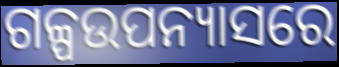
ଗଳ୍ପଉପନ୍ୟାସରେ